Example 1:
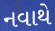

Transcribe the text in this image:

નવાથે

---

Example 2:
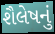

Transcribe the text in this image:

શૈલેષનું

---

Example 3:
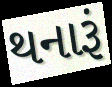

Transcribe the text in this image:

થનારૂં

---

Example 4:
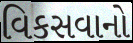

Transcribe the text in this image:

વિકસવાનો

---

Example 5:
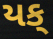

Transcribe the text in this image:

યક્